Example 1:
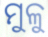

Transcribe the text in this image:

ମୁଳୁ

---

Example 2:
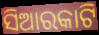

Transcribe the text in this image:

ସିଆରକାଟି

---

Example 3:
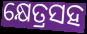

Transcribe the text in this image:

କ୍ଷେତ୍ରସହ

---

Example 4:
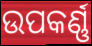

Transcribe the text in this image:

ଉପକର୍ଣ୍ଣ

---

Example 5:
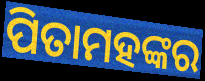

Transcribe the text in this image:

ପିତାମହଙ୍କର